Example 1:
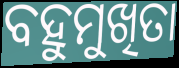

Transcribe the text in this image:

ବହୁମୁଖିତା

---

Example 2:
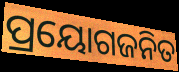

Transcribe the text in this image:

ପ୍ରୟୋଗଜନିତ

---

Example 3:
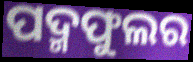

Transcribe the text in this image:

ପଦ୍ମଫୁଲର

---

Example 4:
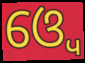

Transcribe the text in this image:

ଓ୍ବେ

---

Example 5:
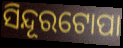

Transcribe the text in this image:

ସିନ୍ଦୂରଟୋପା